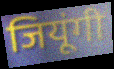
जियूंगी